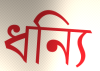
ধন্যি